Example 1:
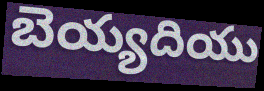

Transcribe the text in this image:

బెయ్యదియు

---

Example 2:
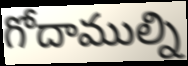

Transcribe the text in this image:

గోదాముల్ని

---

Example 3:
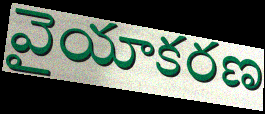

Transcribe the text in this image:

వైయాకరణ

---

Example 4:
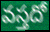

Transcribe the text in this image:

వస్తదో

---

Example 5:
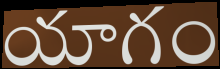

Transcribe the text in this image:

యాగం